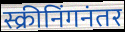
स्क्रीनिंगनंतर